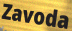
Zavoda